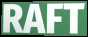
RAFT